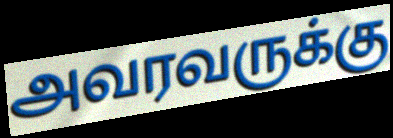
அவரவருக்கு